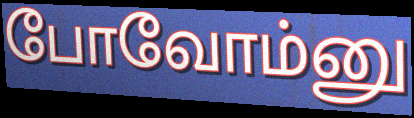
போவோம்னு